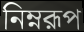
নিম্নরূপ